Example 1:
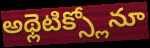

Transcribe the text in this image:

అథ్లెటిక్స్లోనూ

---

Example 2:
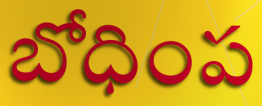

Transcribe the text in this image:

బోధింప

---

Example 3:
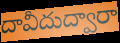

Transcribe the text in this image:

దావీదుద్వారా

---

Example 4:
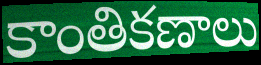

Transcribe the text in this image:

కాంతికణాలు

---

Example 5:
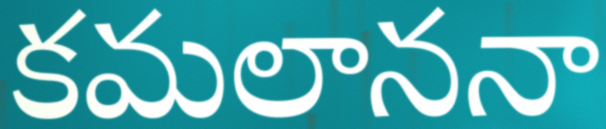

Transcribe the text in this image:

కమలాననా